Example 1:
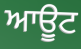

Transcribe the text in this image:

ਆਉੂਟ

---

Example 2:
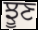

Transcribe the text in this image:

ਝੂਣ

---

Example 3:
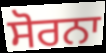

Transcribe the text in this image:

ਸੋਰਨਾ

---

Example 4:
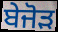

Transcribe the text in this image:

ਬੇਜੋੜ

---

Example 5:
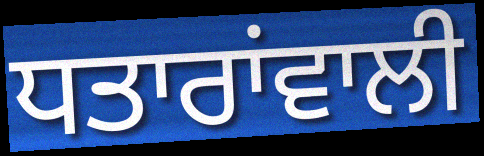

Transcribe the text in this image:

ਧਤਾਰਾਂਵਾਲੀ